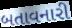
બતાવનારી